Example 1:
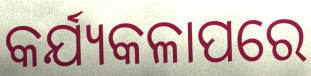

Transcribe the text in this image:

କର୍ଯ୍ୟକଳାପରେ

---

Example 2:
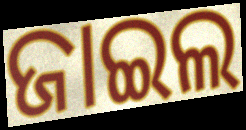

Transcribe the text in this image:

ଜାଇଲ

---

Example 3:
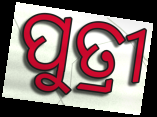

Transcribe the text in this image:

ପୁତ୍ରୀ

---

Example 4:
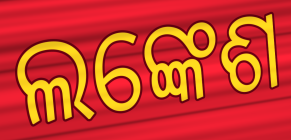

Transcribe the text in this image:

ଲଙ୍କେଶ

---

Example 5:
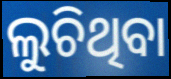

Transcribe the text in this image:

ଲୁଚିଥିବା